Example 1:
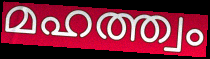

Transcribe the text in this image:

മഹത്ത്വം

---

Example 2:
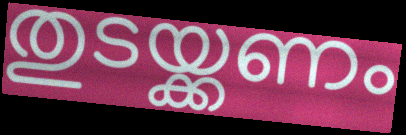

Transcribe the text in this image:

തുടയ്ക്കണം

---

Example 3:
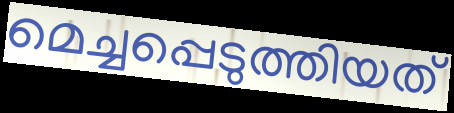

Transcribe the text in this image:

മെച്ചപ്പെടുത്തിയത്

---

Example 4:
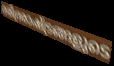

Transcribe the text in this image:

ദരിദ്രരാഷ്ട്രങ്ങളുടെ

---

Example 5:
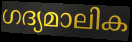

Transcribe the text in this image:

ഗദ്യമാലിക